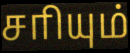
சரியும்